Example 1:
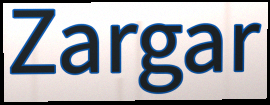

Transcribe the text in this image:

Zargar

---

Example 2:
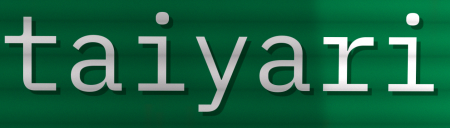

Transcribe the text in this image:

taiyari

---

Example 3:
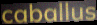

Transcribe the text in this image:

caballus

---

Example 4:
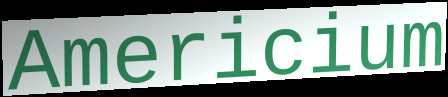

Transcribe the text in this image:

Americium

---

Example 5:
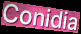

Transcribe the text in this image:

Conidia